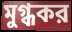
মুগ্ধকর